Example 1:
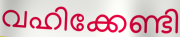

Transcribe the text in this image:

വഹിക്കേണ്ടി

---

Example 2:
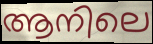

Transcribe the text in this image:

ആനിലെ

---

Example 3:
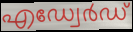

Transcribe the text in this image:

എഡ്വേർഡ്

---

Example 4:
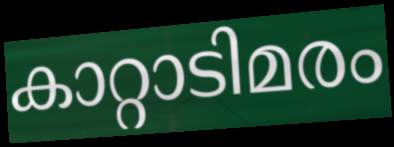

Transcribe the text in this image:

കാറ്റാടിമരം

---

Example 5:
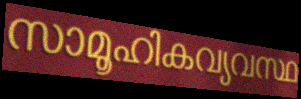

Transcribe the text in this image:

സാമൂഹികവ്യവസ്ഥ